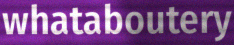
whataboutery